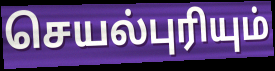
செயல்புரியும்